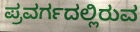
ಪ್ರವರ್ಗದಲ್ಲಿರುವ